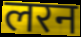
लरन